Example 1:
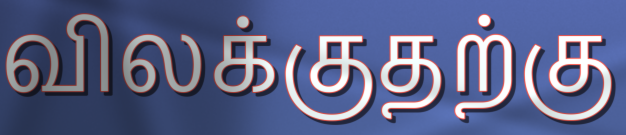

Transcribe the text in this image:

விலக்குதற்கு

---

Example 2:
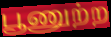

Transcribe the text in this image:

பூணுற்ற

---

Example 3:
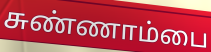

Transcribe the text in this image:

சுண்ணாம்பை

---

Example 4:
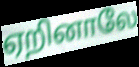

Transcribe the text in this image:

ஏறினாலே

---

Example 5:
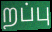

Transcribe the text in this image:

றப்பு